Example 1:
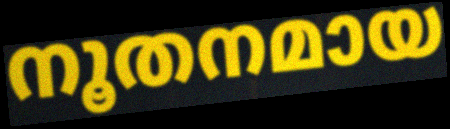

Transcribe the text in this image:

നൂതനമായ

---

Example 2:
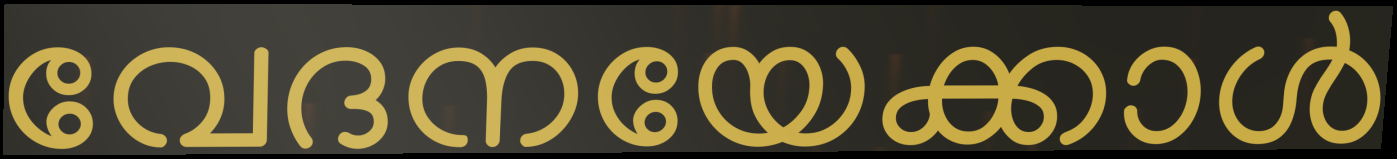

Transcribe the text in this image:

വേദനയേക്കാൾ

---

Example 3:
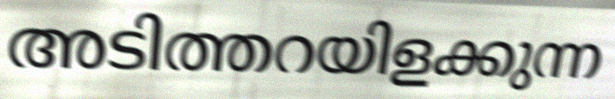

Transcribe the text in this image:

അടിത്തറയിളക്കുന്ന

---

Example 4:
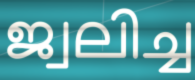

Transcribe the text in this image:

ജ്വലിച്ച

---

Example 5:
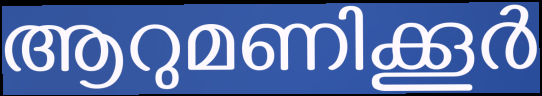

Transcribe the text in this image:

ആറുമണിക്കൂർ